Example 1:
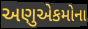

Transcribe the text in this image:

અણુએકમોના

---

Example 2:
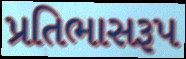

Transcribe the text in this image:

પ્રતિભાસરૂપ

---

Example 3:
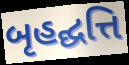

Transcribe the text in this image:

બૃહદ્ઘત્તિ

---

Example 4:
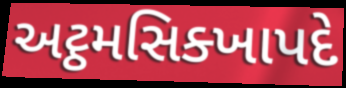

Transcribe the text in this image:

અટ્ઠમસિક્ખાપદે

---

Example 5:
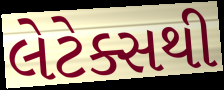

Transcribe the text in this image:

લેટેક્સથી